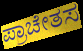
ಪ್ರಾಚೇತಸ